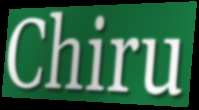
Chiru